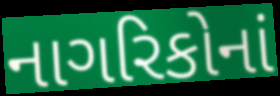
નાગરિકોનાં